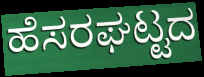
ಹೆಸರಘಟ್ಟದ